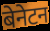
बेनेटन